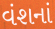
વંશનાં